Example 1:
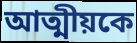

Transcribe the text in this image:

আত্মীয়কে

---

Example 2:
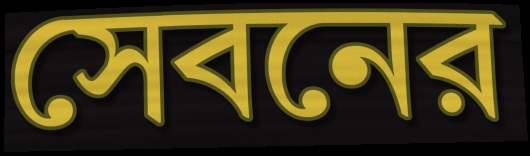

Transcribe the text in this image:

সেবনের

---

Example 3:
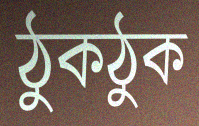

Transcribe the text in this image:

ঠুকঠুক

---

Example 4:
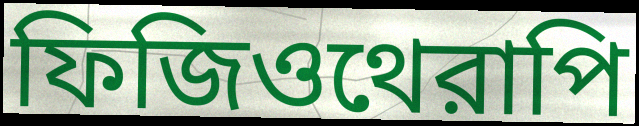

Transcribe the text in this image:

ফিজিওথেরাপি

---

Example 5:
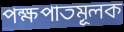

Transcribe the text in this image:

পক্ষপাতমূলক